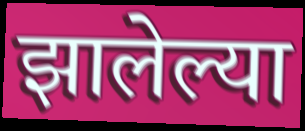
झालेल्या